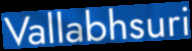
Vallabhsuri